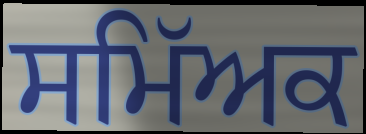
ਸਮਿੱਅਕ